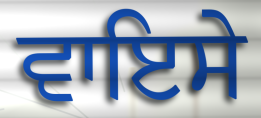
ਵਾਇਸੇ